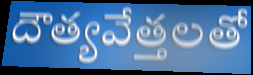
దౌత్యవేత్తలతో